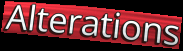
Alterations